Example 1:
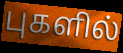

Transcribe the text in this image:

புகளில்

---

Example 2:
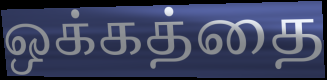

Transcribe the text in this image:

ஒக்கத்தை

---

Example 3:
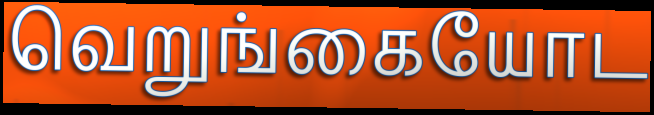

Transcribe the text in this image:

வெறுங்கையோட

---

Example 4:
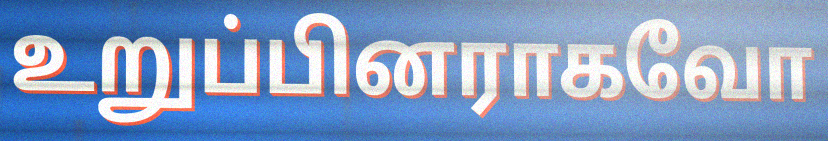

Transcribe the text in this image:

உறுப்பினராகவோ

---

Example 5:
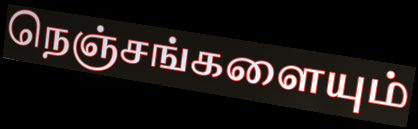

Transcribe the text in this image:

நெஞ்சங்களையும்